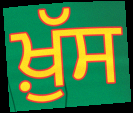
ਖ਼ੁੱਸ